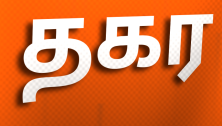
தகர